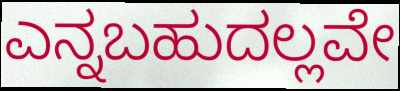
ಎನ್ನಬಹುದಲ್ಲವೇ